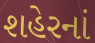
શહેરનાં